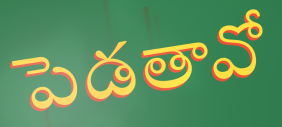
పెడతావో